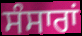
ਸੰਸਾਰਾਂ